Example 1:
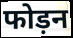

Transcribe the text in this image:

फोड़न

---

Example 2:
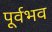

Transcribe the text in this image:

पूर्वभव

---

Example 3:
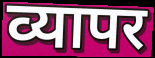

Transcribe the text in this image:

व्यापर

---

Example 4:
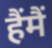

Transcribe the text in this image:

हैंमैं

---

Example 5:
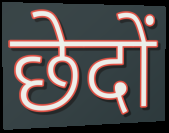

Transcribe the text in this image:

छेदों